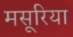
मसूरिया